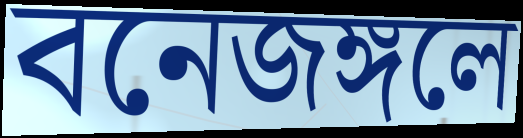
বনেজঙ্গলে